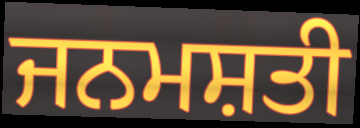
ਜਨਮਸ਼ਤੀ